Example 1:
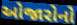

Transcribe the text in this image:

ઓજારોનો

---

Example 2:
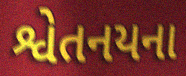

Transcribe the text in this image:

શ્વેતનયના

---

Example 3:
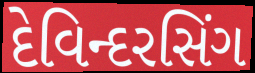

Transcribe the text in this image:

દેવિન્દરસિંગ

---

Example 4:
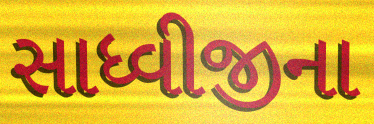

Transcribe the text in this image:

સાધ્વીજીના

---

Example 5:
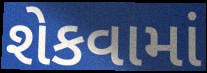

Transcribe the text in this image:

શેકવામાં